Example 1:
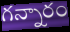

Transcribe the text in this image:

గన్నారం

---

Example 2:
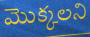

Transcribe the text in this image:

మొక్కలని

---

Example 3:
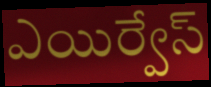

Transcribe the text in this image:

ఎయిర్వేస్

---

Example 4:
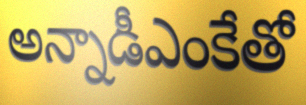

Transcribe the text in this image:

అన్నాడీఎంకేతో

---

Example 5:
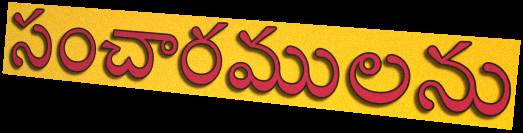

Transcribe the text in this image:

సంచారములను